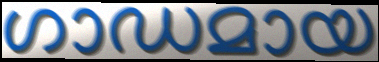
ഗാഡമായ